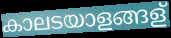
കാലടയാളങ്ങള്